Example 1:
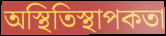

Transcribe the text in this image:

অস্থিতিস্থাপকতা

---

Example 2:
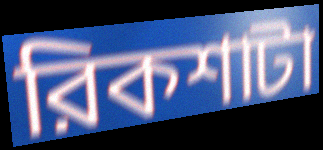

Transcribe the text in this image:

রিকশাটা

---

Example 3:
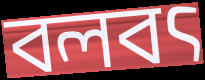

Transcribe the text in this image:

বলবৎ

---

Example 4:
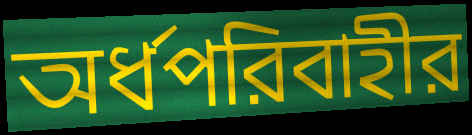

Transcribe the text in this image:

অর্ধপরিবাহীর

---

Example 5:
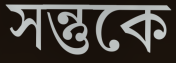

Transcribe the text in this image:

সন্তুকে